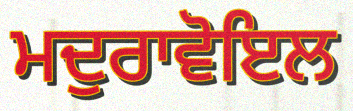
ਮਦੁਰਾਵੋਇਲ